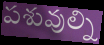
పశువుల్ని